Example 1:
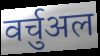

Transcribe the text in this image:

वर्चुअल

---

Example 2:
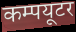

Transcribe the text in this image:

कम्पयूटर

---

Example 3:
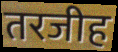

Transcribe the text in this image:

तरजीह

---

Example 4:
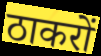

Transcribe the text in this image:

ठाकरों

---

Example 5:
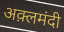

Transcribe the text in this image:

अक़्लमंदी